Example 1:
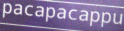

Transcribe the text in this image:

pacapacappu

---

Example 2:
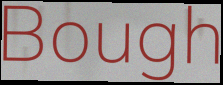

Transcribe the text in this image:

Bough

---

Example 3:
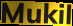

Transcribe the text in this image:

Mukil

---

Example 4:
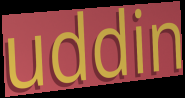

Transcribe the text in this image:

uddin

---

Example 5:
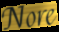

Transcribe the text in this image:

Nore